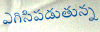
ఎగిసిపడుతున్న